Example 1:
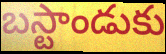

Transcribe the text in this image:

బస్టాండుకు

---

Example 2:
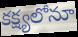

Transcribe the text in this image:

కక్ష్యలోనూ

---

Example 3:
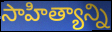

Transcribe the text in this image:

సాహిత్యాన్ని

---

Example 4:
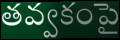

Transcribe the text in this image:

తవ్వకంపై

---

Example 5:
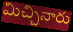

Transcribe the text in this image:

మిచ్చినారు